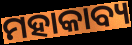
ମହାକାବ୍ୟ